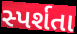
સ્પર્શતા